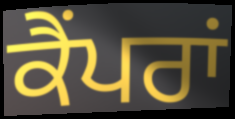
ਕੈਂਪਰਾਂ